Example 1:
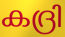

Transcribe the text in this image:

കദ്രി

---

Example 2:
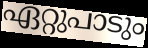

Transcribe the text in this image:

ഏറ്റുപാടും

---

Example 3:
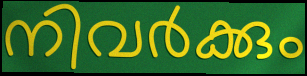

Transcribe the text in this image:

നിവർക്കും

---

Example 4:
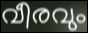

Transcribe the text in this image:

വീരവും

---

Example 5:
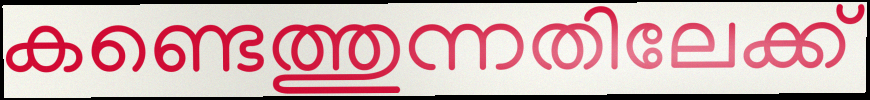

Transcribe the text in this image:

കണ്ടെത്തുന്നതിലേക്ക്